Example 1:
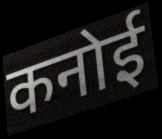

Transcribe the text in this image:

कनोई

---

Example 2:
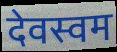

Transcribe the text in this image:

देवस्वम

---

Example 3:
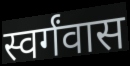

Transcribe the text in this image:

स्वर्गंवास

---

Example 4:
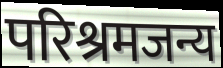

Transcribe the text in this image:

परिश्रमजन्य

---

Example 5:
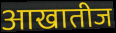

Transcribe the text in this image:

आखातीज